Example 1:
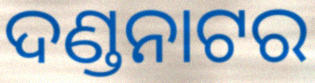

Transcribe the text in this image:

ଦଣ୍ଡନାଟର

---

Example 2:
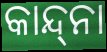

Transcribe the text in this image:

କାନ୍ଦ୍‌ନା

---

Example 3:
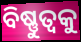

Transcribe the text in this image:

ବିଷ୍ଣୁତ୍ୱକୁ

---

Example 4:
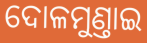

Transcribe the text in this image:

ଦୋଳମୁଣ୍ତାଇ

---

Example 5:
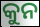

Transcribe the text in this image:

କୁନ